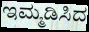
ಇಮ್ಮಡಿಸಿದ